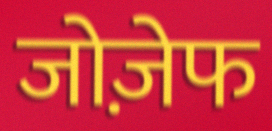
जोज़ेफ